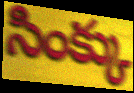
సింక్కు